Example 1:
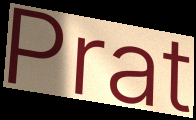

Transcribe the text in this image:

Prat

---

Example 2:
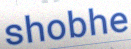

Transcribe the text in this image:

shobhe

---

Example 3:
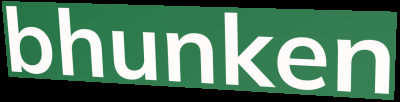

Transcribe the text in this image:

bhunken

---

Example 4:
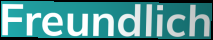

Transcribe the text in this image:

Freundlich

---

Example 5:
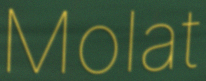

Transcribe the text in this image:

Molat